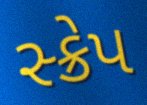
સ્ક્રેપ